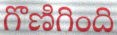
గొణిగింది